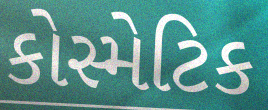
કોસ્મેટિક